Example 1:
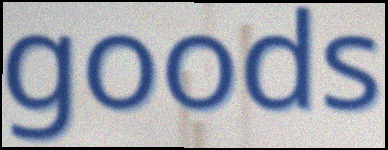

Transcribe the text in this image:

goods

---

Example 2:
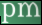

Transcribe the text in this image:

pm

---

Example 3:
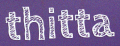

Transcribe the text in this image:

thitta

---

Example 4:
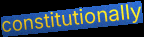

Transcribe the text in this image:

constitutionally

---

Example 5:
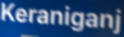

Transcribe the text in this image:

Keraniganj